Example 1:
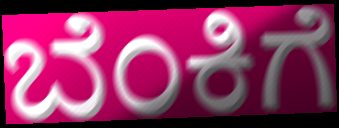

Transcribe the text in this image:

ಬೆಂಕಿಗೆ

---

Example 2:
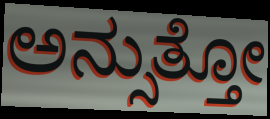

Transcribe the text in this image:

ಅನ್ಸುತ್ತೋ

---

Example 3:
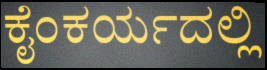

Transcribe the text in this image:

ಕೈಂಕರ್ಯದಲ್ಲಿ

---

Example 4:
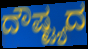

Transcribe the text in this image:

ದೌಷ್ಟ್ಯದ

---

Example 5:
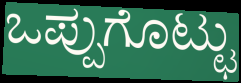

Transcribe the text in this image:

ಒಪ್ಪುಗೊಟ್ಟು